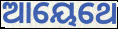
ଆୟେଥେ